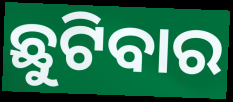
ଛୁଟିବାର